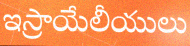
ఇస్రాయేలీయులు